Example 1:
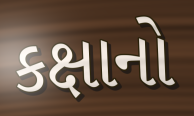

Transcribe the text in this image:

કક્ષાનો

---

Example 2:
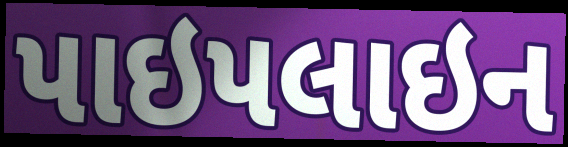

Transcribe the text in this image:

પાઇપલાઇન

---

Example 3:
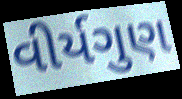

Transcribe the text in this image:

વીર્યગુણ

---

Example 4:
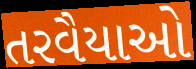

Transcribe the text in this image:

તરવૈયાઓ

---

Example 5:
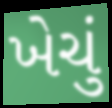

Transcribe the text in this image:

ખેચું